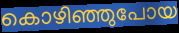
കൊഴിഞ്ഞുപോയ